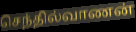
செந்தில்வாணன்